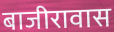
बाजीरावास